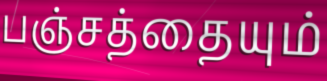
பஞ்சத்தையும்